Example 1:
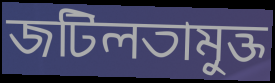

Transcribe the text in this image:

জটিলতামুক্ত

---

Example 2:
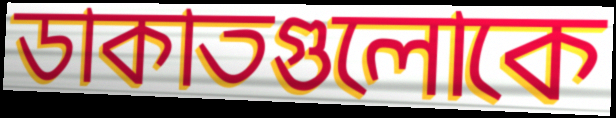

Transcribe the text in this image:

ডাকাতগুলোকে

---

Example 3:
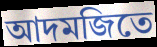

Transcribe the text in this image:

আদমজিতে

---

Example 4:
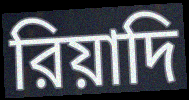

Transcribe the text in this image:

রিয়াদি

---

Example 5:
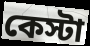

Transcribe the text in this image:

কেস্টা